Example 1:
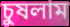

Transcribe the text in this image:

চুষলাম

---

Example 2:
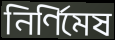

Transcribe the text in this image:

নির্ণিমেষ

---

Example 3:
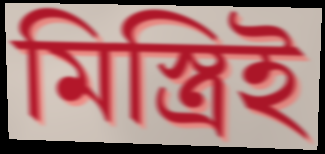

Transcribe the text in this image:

মিস্ত্রিই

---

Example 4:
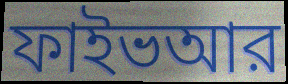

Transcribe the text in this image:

ফাইভআর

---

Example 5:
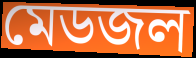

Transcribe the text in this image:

মেডজল